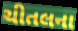
ચીતલના